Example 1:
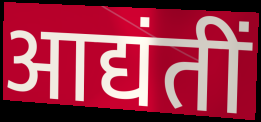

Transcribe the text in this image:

आद्यंतीं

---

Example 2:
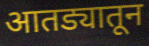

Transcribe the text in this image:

आतड्यातून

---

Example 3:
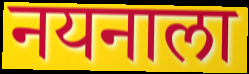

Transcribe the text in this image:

नयनाला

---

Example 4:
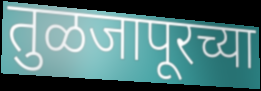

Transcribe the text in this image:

तुळजापूरच्या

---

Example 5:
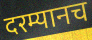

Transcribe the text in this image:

दरम्यानच